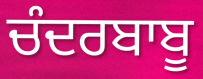
ਚੰਦਰਬਾਬੂ